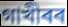
গাখীৰৰ